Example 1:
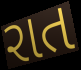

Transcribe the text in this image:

રાત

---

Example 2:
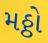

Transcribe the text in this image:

મઠ્ઠો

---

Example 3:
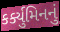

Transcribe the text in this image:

કર્ક્યુમિનનું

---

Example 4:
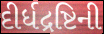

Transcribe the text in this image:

દીર્ધદ્રષ્ટિની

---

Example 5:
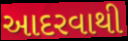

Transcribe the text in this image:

આદરવાથી